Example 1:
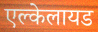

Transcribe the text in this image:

एल्केलायड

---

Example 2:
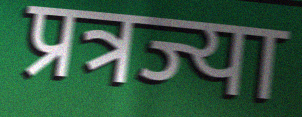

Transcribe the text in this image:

प्रत्रज्या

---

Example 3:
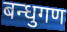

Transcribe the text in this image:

बन्धुगण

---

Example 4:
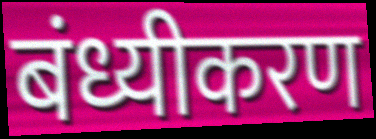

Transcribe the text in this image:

बंध्यीकरण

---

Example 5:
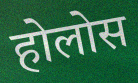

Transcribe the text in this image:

होलोस